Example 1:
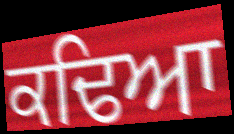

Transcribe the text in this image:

ਕਢਿਆ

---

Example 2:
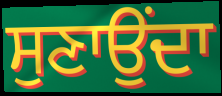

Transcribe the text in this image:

ਸੁਣਾਉਂਦਾ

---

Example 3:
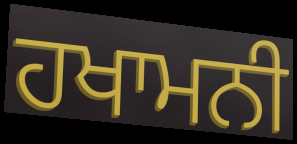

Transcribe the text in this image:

ਹਖਾਮਨੀ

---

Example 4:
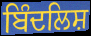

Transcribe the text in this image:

ਬਿੰਦਲਿਸ਼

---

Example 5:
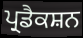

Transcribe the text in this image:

ਪ੍ਰਡੈਕਸ਼ਨ